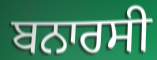
ਬਨਾਰਸੀ